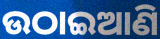
ଉଠାଇଆଣି